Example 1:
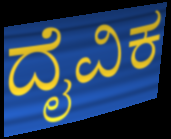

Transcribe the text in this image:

ದೈವಿಕ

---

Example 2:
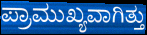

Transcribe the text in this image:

ಪ್ರಾಮುಖ್ಯವಾಗಿತ್ತು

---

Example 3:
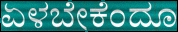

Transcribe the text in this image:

ಏಳಬೇಕೆಂದೂ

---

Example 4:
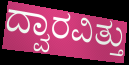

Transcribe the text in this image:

ದ್ವಾರವಿತ್ತು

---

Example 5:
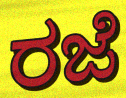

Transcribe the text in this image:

ರಜೆ